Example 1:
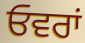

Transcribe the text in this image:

ਓਵਰਾਂ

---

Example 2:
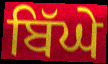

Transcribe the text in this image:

ਬਿੱਘੇ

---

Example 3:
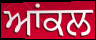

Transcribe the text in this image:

ਆਂਕਲ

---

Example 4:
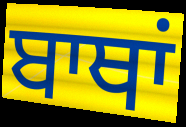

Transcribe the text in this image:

ਬਾਥਾਂ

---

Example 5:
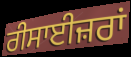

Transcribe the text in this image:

ਰੀਸਾਈਜ਼ਰਾਂ